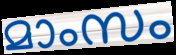
മാംസം